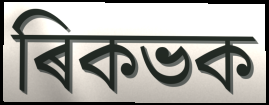
ৰিকভক